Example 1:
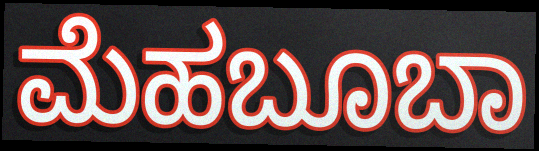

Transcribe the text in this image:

ಮೆಹಬೂಬಾ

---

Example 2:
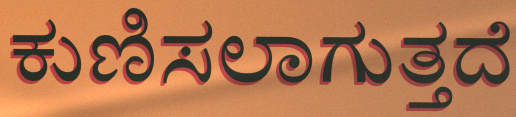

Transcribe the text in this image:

ಕುಣಿಸಲಾಗುತ್ತದೆ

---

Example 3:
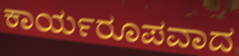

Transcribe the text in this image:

ಕಾರ್ಯರೂಪವಾದ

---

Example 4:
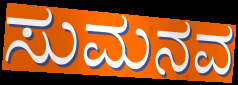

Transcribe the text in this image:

ಸುಮನವ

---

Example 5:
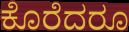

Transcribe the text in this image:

ಕೊರೆದರೂ